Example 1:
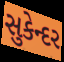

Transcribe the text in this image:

સુકેન્દર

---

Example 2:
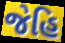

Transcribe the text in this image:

જેહિ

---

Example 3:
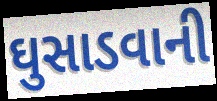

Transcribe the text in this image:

ઘુસાડવાની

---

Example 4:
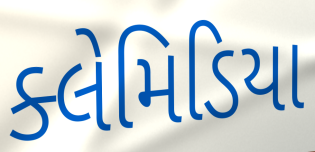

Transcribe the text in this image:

ક્લેમિડિયા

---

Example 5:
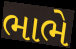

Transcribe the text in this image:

ભાભે